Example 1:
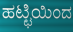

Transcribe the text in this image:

ಹಟ್ಟಿಯಿಂದ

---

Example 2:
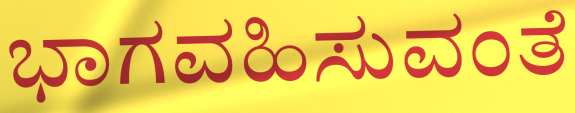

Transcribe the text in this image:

ಭಾಗವಹಿಸುವಂತೆ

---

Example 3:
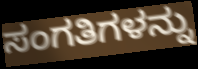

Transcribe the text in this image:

ಸಂಗತಿಗಳನ್ನು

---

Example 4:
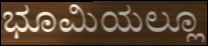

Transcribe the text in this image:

ಭೂಮಿಯಲ್ಲೂ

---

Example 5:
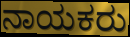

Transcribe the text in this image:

ನಾಯಕರು